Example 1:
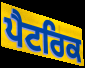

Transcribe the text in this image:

ਪੈਟਰਿਕ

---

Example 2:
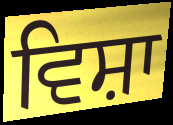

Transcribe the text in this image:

ਵਿਸ਼ਾ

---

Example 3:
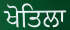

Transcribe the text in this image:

ਖੋਤਿਲਾ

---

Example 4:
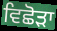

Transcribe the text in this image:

ਵਿਛੋੜਾ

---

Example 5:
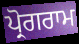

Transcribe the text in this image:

ਪ੍ਰੋਗਰਾਮ